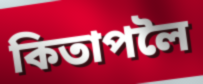
কিতাপলৈ